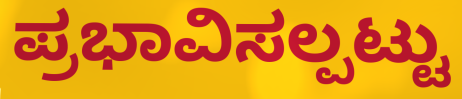
ಪ್ರಭಾವಿಸಲ್ಪಟ್ಟು